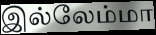
இல்லேம்மா